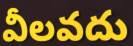
వీలవదు